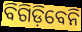
ବିଗିଡ଼ିବେନି